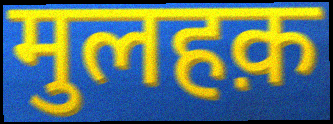
मुलहक़